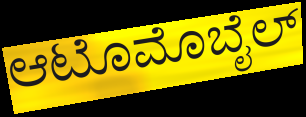
ಆಟೊಮೊಬೈಲ್